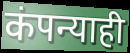
कंपन्याही